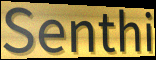
Senthi